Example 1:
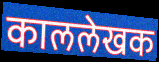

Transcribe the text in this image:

काललेखक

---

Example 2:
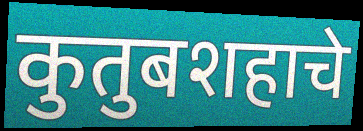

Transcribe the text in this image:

कुतुबशहाचे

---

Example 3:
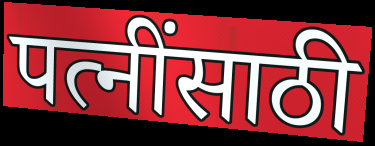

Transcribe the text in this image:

पत्नींसाठी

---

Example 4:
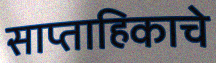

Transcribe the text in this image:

साप्ताहिकाचे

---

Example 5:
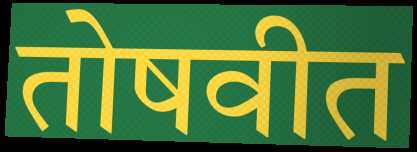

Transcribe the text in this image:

तोषवीत